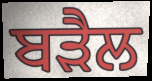
ਬੜੈਲ